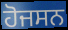
ਹੋਜਸਨ